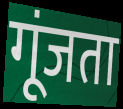
गूंजता